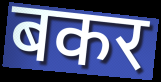
बकर